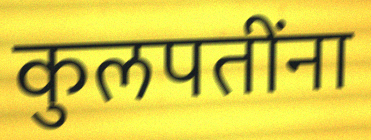
कुलपतींना